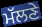
ਮੱਲਣੇ